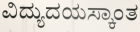
ವಿದ್ಯುದಯಸ್ಕಾಂತ